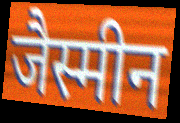
जैस्‍मीन